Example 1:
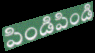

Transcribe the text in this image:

పిండిపిండి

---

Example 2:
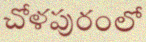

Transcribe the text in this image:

చోళపురంలో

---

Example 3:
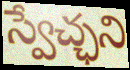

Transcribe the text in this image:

స్వేచ్ఛని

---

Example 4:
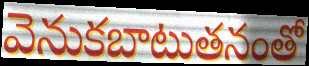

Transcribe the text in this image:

వెనుకబాటుతనంతో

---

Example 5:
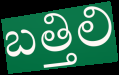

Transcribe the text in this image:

బత్తిలి